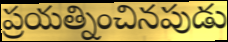
ప్రయత్నించినపుడు